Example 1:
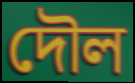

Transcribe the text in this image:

দৌল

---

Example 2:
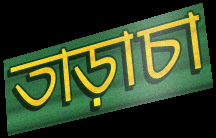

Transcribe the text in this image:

তাড়াচা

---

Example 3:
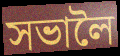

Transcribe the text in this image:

সভালৈ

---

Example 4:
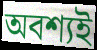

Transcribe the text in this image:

অবশ্যই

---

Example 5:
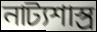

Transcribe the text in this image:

নাট্যশাস্ত্ৰ